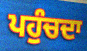
ਪਹੁੰਚਦਾ